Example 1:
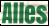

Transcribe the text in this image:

Alles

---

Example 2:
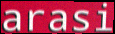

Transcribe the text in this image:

arasi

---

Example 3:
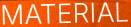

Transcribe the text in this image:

MATERIAL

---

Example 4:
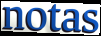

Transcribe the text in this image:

notas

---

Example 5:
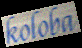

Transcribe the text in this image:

koloba